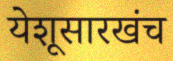
येशूसारखंच